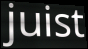
juist